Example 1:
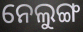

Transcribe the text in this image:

ନେଲୁଙ୍ଗ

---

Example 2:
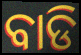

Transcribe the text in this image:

ବାଡି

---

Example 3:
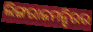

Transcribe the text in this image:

ଲିଙ୍ଗରାଜମନ୍ଦିରର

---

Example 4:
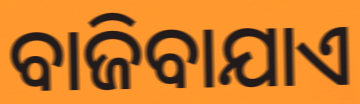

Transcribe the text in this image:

ବାଜିବାଯାଏ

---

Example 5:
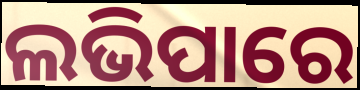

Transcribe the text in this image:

ଲଭିପାରେ